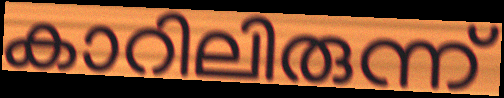
കാറിലിരുന്ന്